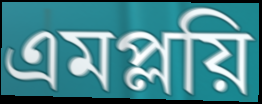
এমপ্লয়ি